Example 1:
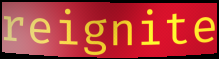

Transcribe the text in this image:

reignite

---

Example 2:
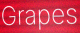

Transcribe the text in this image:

Grapes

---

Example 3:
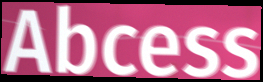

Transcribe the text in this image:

Abcess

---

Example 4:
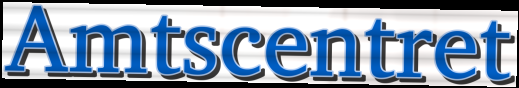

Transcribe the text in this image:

Amtscentret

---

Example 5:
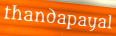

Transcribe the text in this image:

thandapayal